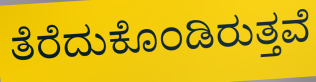
ತೆರೆದುಕೊಂಡಿರುತ್ತವೆ